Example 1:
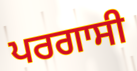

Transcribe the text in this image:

ਪਰਗਾਸੀ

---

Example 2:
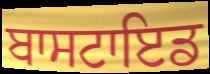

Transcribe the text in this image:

ਬਾਸਟਾਇਡ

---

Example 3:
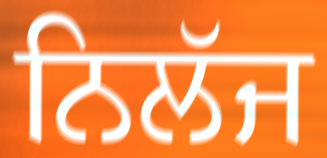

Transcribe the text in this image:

ਨਿਲੱਜ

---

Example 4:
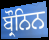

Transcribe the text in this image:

ਬ੍ਰੌਨਿਨ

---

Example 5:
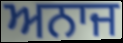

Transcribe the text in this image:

ਅਨਾਜ